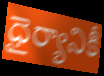
ధైర్యానికీ